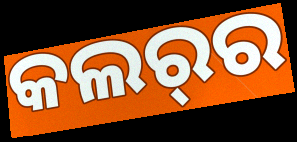
କଲର୍‌ର